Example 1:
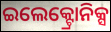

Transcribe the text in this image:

ଇଲେକ୍ଟ୍ରୋନିକ୍ସ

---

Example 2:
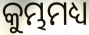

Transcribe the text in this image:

କୁମ୍ଭମଧ୍ୟ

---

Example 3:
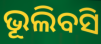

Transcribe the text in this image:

ଭୂଲିବସି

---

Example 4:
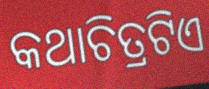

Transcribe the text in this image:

କଥାଚିତ୍ରଟିଏ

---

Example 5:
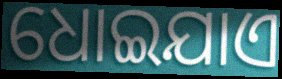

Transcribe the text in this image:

ଧୋଇଯାଏ